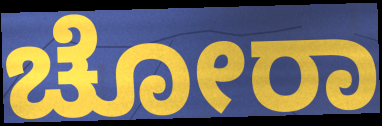
ಚೋರಾ